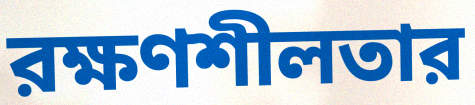
রক্ষণশীলতার